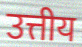
उत्तीय